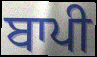
ਬਾਪੀ